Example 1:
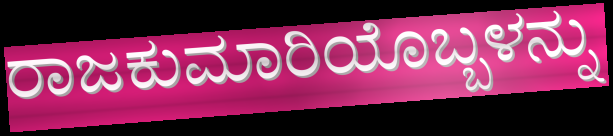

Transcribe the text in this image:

ರಾಜಕುಮಾರಿಯೊಬ್ಬಳನ್ನು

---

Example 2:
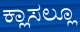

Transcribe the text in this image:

ಕ್ಲಾಸಲ್ಲೂ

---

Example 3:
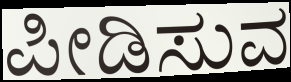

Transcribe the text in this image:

ಪೀಡಿಸುವ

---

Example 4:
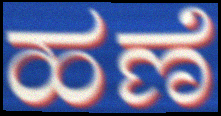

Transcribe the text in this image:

ಹಣೆ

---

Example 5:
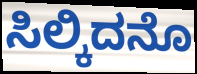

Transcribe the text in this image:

ಸಿಲ್ಕಿದನೊ